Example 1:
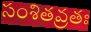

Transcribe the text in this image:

సంశితవ్రతః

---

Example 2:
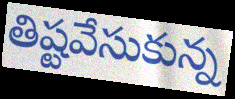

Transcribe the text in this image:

తిష్టవేసుకున్న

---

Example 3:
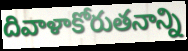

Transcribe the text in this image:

దివాళాకోరుతనాన్ని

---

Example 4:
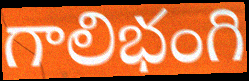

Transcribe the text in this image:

గాలిభంగి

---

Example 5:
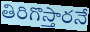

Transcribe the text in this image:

తిరిగొస్తారనే